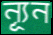
ন্যূন